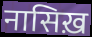
नासिख़